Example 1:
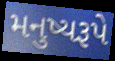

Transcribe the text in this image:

મનુષ્યરૂપે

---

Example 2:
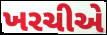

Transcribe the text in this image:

ખરચીએ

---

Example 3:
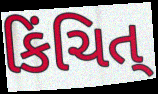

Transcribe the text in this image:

કિંચિત્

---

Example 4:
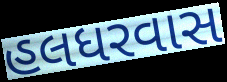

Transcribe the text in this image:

હલધરવાસ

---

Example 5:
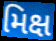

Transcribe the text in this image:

મિક્ષ